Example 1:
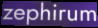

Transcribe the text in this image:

zephirum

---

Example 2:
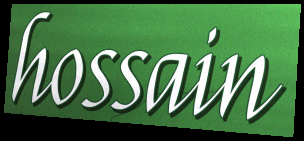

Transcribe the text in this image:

hossain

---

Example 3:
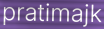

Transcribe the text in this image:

pratimajk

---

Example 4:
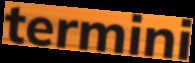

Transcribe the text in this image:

termini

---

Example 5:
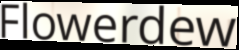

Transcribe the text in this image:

Flowerdew